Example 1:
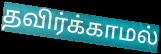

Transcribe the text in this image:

தவிர்க்காமல்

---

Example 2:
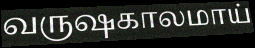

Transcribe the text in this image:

வருஷகாலமாய்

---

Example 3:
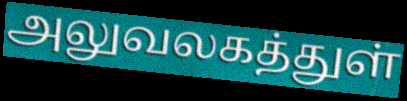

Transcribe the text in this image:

அலுவலகத்துள்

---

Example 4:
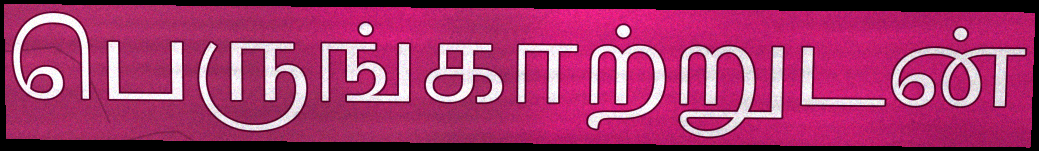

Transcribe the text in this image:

பெருங்காற்றுடன்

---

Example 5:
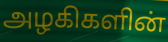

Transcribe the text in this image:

அழகிகளின்